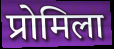
प्रोमिला